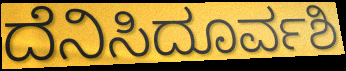
ದೆನಿಸಿದೂರ್ವಶಿ